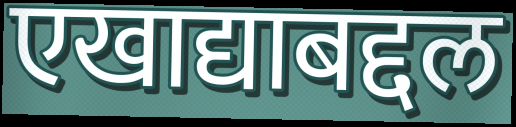
एखाद्याबद्दल